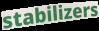
stabilizers